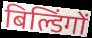
बिल्डिंगों